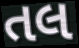
તલ